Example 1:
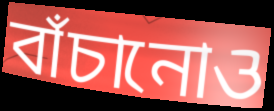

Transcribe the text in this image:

বাঁচানোও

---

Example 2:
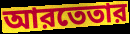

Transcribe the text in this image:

আরতেতার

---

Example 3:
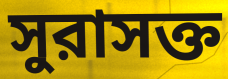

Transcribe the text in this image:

সুরাসক্ত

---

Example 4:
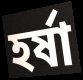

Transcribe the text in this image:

হর্ষা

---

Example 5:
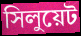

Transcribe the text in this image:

সিলুয়েট